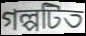
গল্পটিত